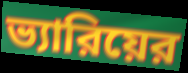
ভ্যারিয়ের